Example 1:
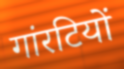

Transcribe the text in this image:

गांरटियों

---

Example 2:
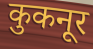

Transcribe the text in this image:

कुकनूर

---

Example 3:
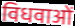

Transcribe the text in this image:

विधवाओं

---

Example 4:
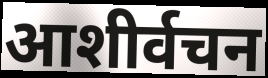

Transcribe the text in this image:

आशीर्वचन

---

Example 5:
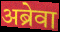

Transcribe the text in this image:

अब्रेवा